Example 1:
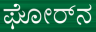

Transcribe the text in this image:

ಘೋರ್‌ನ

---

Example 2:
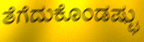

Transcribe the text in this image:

ತೆಗೆದುಕೊಂಡಷ್ಟು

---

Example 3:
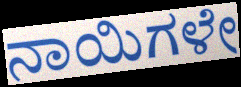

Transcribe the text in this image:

ನಾಯಿಗಳೇ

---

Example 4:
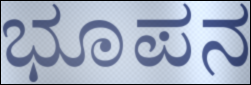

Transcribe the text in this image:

ಭೂಪನ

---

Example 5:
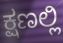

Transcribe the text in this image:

ಕ್ಷಣಲ್ಲಿ